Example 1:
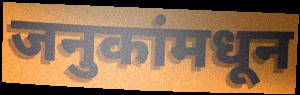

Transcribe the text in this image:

जनुकांमधून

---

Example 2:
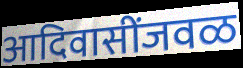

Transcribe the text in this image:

आदिवासींजवळ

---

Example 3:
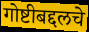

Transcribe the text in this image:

गोष्टीबद्दलचे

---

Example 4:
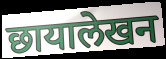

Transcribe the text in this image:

छायालेखन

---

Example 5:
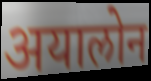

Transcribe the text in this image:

अयालोन